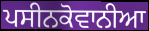
ਪਸੀਨਕੋਵਾਨੀਆ